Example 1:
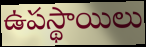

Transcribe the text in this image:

ఉపస్థాయిలు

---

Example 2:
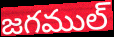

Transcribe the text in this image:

జగముల్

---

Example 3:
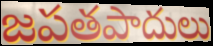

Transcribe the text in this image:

జపతపాదులు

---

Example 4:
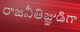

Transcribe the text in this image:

రాజనీతిజ్ఞుడిగా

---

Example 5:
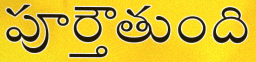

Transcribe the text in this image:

పూర్తౌతుంది